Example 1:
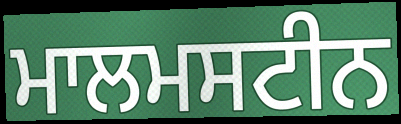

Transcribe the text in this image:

ਮਾਲਮਸਟੀਨ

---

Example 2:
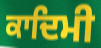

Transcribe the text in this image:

ਕਾਦਿਮੀ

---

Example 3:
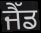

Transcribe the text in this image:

ਜੈੱਡ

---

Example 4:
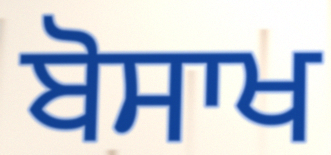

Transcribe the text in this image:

ਬੋਸਾਖ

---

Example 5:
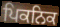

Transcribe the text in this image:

ਪਿਕਨਿਕ